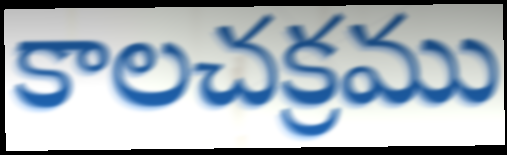
కాలచక్రము